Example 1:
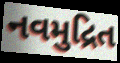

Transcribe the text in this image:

નવમુદ્રિત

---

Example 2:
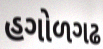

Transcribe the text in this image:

હગોળગઢ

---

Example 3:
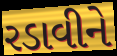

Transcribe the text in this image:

રડાવીને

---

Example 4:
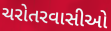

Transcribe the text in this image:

ચરોતરવાસીઓ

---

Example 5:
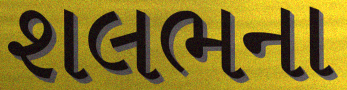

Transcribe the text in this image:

શલભના